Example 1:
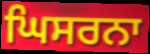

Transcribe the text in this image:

ਘਿਸਰਨਾ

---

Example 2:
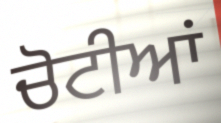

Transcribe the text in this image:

ਚੋਟੀਆਂ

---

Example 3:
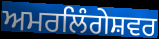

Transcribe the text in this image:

ਅਮਰਲਿੰਗੇਸ਼ਵਰ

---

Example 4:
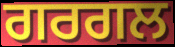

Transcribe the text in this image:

ਗਰਗਲ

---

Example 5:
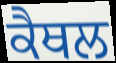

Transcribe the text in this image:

ਕੈਥਲ